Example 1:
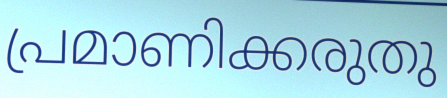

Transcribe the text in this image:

പ്രമാണിക്കരുതു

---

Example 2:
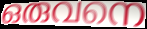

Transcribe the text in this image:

ഒരുവനെ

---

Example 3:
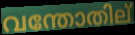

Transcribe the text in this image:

വന്തോതില്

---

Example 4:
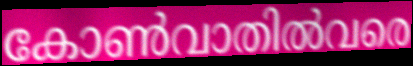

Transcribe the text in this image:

കോൺവാതിൽവരെ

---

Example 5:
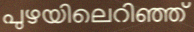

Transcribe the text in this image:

പുഴയിലെറിഞ്ഞ്